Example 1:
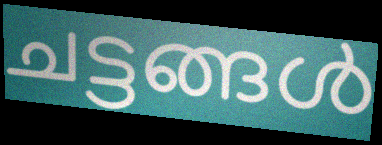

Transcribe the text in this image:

ചട്ടങ്ങൾ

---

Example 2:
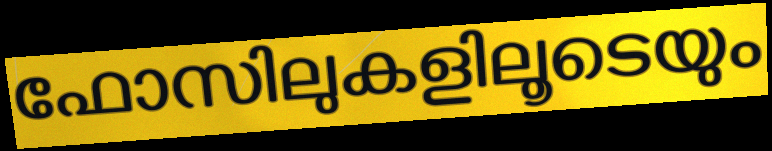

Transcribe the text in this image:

ഫോസിലുകളിലൂടെയും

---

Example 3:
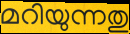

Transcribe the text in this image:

മറിയുന്നതു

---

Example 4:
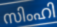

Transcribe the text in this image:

സിംഹി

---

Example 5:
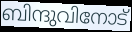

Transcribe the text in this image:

ബിന്ദുവിനോട്